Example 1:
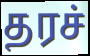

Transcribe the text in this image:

தரச்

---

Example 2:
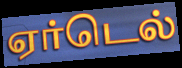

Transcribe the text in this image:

ஏர்டெல்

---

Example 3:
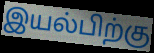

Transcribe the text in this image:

இயல்பிற்கு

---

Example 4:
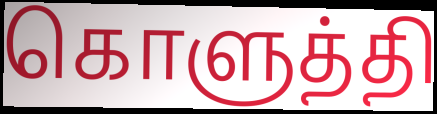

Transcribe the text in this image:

கொளுத்தி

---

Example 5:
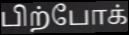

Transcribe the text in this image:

பிற்போக்